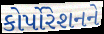
કોર્પોરેશનને